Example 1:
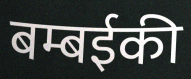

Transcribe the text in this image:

बम्बईकी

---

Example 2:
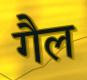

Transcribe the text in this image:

गैल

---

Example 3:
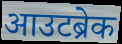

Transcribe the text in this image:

आउटब्रेक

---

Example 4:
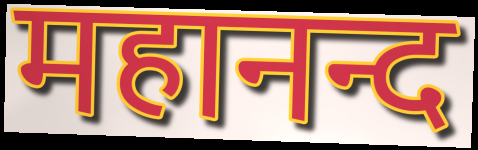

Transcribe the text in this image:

महानन्द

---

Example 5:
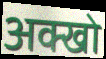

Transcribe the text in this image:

अक्खो